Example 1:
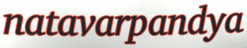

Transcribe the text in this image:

natavarpandya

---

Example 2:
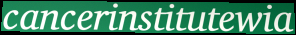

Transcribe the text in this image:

cancerinstitutewia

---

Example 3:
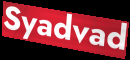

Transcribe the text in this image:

Syadvad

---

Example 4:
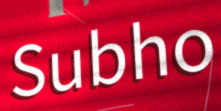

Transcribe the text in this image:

Subho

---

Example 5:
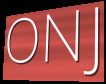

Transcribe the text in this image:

ONJ